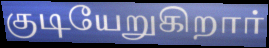
குடியேறுகிறார்